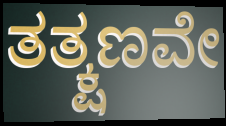
ತತ್ಕ್ಷಣವೇ